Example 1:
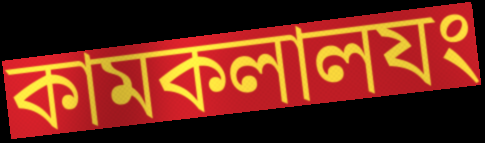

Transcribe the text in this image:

কামকলালযং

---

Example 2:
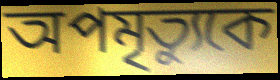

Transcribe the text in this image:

অপমৃত্যুকে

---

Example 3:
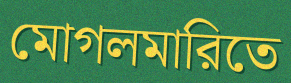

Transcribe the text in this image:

মোগলমারিতে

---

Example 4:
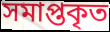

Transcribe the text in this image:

সমাপ্তকৃত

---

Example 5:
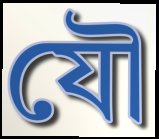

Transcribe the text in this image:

যৌ